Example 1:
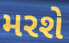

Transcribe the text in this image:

મરશે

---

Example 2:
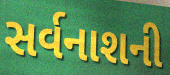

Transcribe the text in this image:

સર્વનાશની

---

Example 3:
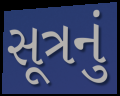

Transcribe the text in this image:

સૂત્રનું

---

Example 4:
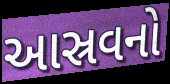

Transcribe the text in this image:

આસ્રવનો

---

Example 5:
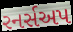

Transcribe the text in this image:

રનર્સઅપ